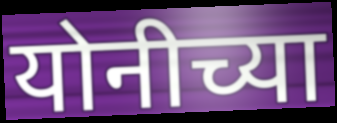
योनीच्या